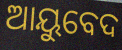
ଆୟୁବେଦ